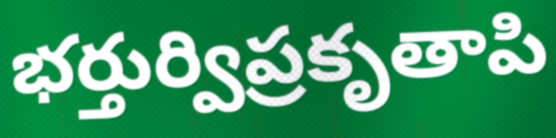
భర్తుర్విప్రకృతాపి